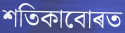
শতিকাবোৰত